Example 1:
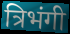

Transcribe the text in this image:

त्रिभंगी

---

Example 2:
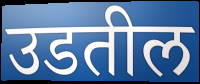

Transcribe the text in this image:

उडतील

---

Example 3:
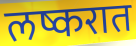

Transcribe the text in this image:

लष्करात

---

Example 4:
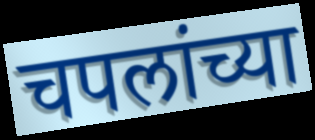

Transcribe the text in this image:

चपलांच्या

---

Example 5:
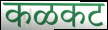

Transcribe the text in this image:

कळकट